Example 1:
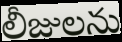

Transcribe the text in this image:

లీజులను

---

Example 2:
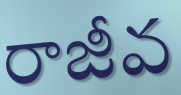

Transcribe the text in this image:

రాజీవ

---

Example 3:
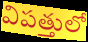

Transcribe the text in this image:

విపత్తులో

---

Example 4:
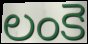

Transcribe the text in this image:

లంకె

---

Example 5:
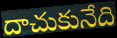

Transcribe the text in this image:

దాచుకునేది